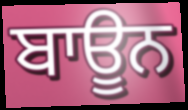
ਬਾਊਨ